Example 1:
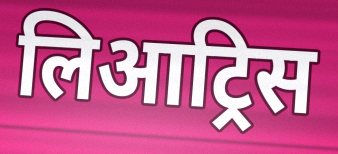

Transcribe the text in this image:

लिआट्रिस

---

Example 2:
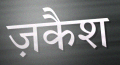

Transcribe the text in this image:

ज़कैश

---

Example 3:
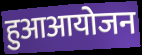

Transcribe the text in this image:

हुआआयोजन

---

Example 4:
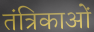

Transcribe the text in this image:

तंत्रिकाओं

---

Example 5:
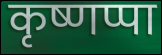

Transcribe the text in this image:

कृष्‍णप्‍पा